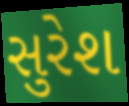
સુરેશ